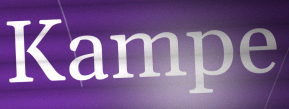
Kampe